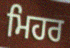
ਮਿਹਰ